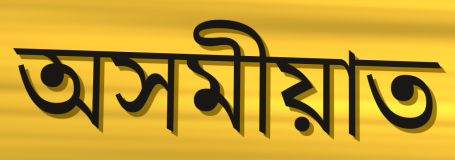
অসমীয়াত